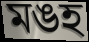
মঙহ